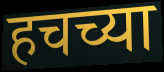
हचच्या